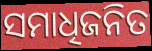
ସମାଧିଜନିତ